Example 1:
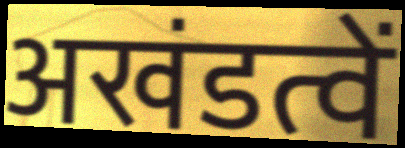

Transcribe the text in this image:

अखंडत्वें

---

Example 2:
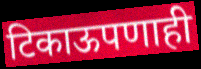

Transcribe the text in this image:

टिकाऊपणाही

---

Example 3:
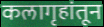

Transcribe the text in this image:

कलागृहांतून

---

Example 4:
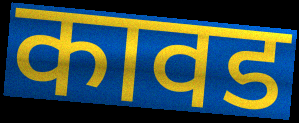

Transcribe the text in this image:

कावड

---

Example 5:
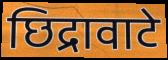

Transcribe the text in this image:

छिद्रावाटे